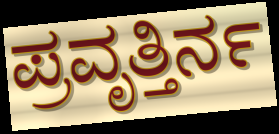
ಪ್ರವೃತ್ತಿರ್ನ